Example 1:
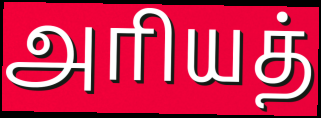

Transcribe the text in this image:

அரியத்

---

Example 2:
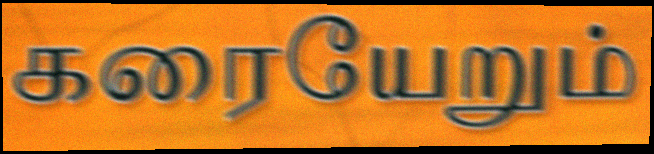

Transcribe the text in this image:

கரையேறும்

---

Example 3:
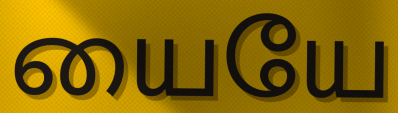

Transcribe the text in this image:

யையே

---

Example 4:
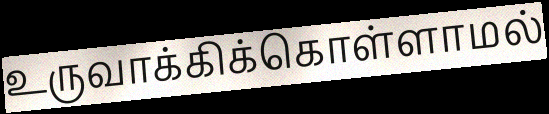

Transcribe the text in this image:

உருவாக்கிக்கொள்ளாமல்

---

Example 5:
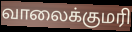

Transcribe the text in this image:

வாலைக்குமரி